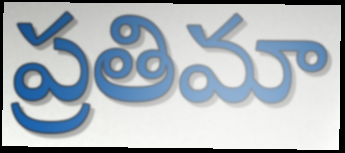
ప్రతిమా